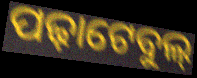
ପଢ଼ାଟେବୁଲ୍